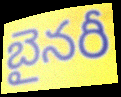
బైనరీ